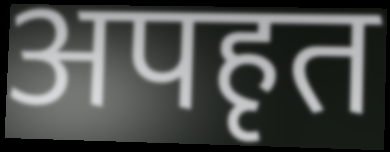
अपहृत